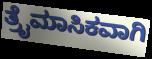
ತ್ರೈಮಾಸಿಕವಾಗಿ